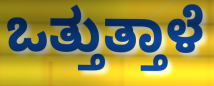
ಒತ್ತುತ್ತಾಳೆ